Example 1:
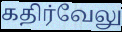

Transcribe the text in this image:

கதிர்வேலு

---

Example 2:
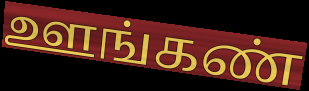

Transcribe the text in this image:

ஊங்கண்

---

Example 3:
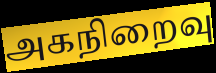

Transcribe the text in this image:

அகநிறைவு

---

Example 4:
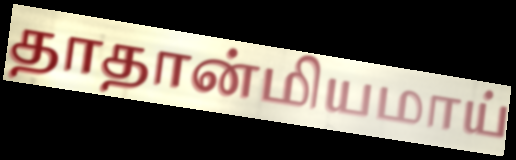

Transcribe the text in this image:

தாதான்மியமாய்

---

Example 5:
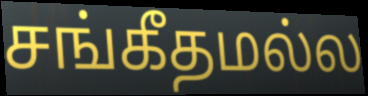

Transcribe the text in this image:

சங்கீதமல்ல